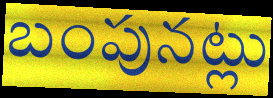
బంపునట్లు